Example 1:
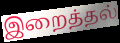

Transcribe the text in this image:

இறைத்தல்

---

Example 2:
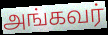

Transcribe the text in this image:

அங்கவர்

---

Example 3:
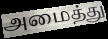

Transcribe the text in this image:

அமைத்து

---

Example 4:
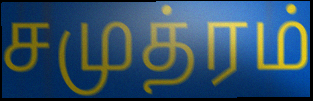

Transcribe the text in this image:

சமுத்ரம்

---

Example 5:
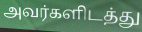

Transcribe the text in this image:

அவர்களிடத்து